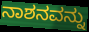
ನಾಶನವನ್ನು